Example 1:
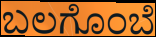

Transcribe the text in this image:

ಬಲಗೊಂಬೆ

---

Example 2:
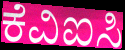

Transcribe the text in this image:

ಕೆವಿಐಸಿ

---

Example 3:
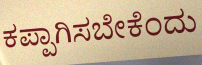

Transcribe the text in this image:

ಕಪ್ಪಾಗಿಸಬೇಕೆಂದು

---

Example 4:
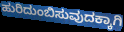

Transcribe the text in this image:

ಹುರಿದುಂಬಿಸುವುದಕ್ಕಾಗಿ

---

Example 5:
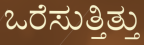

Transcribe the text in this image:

ಒರೆಸುತ್ತಿತ್ತು